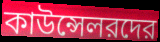
কাউন্সেলরদের